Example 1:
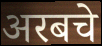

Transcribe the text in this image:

अरबचे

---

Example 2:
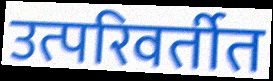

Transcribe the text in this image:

उत्परिवर्तीत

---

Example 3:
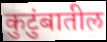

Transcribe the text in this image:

कुटुंबातील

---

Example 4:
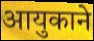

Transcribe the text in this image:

आयुकाने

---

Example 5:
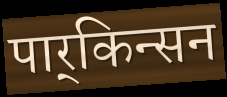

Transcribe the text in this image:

पार्किन्सन